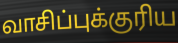
வாசிப்புக்குரிய